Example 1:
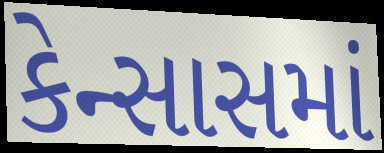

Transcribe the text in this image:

કેન્સાસમાં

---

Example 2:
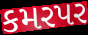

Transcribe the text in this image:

કમરપર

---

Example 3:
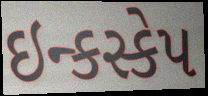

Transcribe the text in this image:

ઇન્કસ્કેપ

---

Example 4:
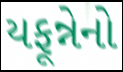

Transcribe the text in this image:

યફૂન્નેનો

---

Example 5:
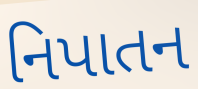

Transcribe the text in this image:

નિપાતન